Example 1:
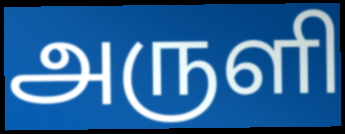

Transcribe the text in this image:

அருளி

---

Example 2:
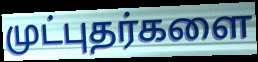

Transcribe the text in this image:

முட்புதர்களை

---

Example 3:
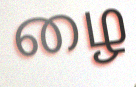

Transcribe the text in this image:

ழை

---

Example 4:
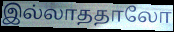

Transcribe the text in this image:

இல்லாததாலோ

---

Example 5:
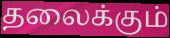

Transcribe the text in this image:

தலைக்கும்